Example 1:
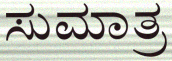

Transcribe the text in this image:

ಸುಮಾತ್ರ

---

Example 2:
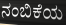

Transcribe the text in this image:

ನಂಬಿಕೆಯ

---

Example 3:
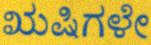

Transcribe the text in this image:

ಋಷಿಗಳೇ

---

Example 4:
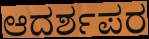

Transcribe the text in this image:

ಆದರ್ಶಪರ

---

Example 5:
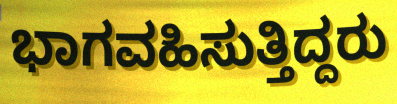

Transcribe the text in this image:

ಭಾಗವಹಿಸುತ್ತಿದ್ದರು